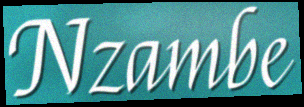
Nzambe